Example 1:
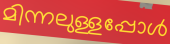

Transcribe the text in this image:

മിന്നലുള്ളപ്പോൾ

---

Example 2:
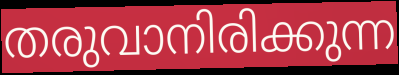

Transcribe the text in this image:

തരുവാനിരിക്കുന്ന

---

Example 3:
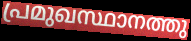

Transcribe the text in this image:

പ്രമുഖസ്ഥാനത്തു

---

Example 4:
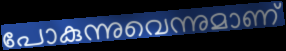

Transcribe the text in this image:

പോകുന്നുവെന്നുമാണ്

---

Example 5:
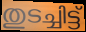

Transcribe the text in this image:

തുടച്ചിട്ട്